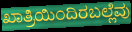
ಖಾತ್ರಿಯಿಂದಿರಬಲ್ಲೆವು